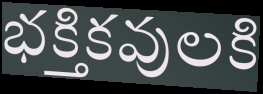
భక్తికవులకి